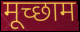
मूच्छाम